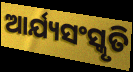
ଆର୍ଯ୍ୟସଂସ୍କୃତି